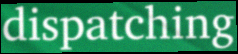
dispatching